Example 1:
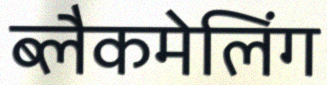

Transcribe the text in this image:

ब्लैकमेलिंग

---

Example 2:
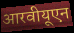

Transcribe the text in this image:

आरवीयूएन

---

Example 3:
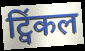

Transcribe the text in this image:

ट्विंकल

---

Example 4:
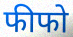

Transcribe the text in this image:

फीफो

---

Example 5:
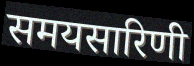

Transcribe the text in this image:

समयसारिणी